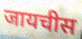
जायचीस